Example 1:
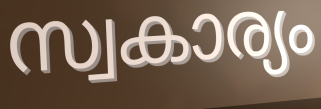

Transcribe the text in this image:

സ്വകാര്യം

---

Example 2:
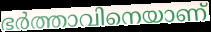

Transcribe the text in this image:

ഭർത്താവിനെയാണ്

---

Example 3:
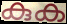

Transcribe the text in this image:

കുക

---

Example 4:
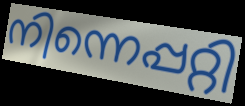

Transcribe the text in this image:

നിന്നെപ്പറ്റി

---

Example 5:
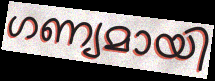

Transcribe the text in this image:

ഗണ്യമായി